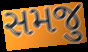
સમજુ